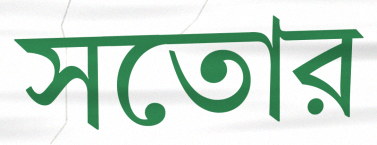
সতোর